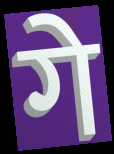
गे